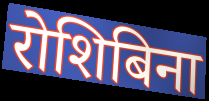
रोशिबिना